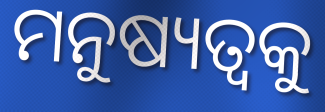
ମନୁଷ୍ୟତ୍ୱକୁ